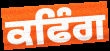
ਕਫਿੰਗ